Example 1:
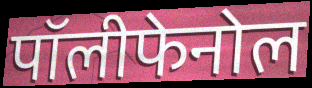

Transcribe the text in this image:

पॉलीफेनोल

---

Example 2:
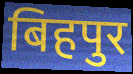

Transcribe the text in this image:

बिहपुर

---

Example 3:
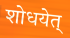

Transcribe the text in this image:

शोधयेत्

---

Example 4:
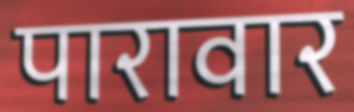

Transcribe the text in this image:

पारावार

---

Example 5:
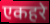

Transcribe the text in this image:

एकहरे